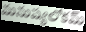
మనుష్యలోకమ్